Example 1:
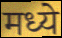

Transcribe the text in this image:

मध्ये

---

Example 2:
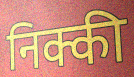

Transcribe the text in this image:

निक्की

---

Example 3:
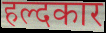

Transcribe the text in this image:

हल्दकार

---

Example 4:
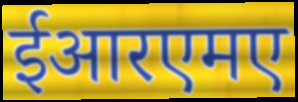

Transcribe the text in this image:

ईआरएमए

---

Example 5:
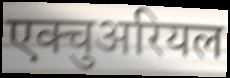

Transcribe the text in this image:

एक्चुअरियल